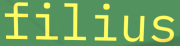
filius